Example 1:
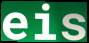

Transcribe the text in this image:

eis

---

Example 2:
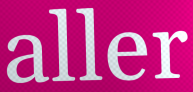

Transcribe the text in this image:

aller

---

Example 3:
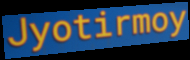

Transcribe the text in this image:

Jyotirmoy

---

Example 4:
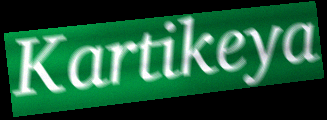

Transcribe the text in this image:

Kartikeya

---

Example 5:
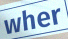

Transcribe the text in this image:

wher